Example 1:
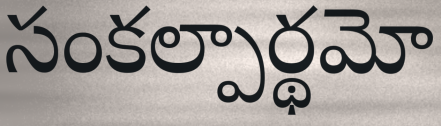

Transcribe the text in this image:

సంకల్పార్థమో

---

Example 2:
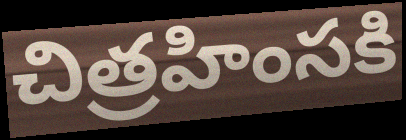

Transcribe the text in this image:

చిత్రహింసకి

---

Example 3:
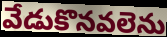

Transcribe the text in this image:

వేడుకొనవలెను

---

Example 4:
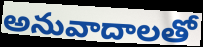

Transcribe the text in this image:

అనువాదాలతో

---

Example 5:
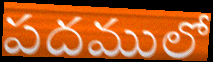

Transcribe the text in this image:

పదములో